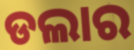
ଡଲାର